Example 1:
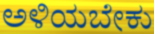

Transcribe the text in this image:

ಅಳಿಯಬೇಕು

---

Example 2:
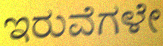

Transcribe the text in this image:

ಇರುವೆಗಳೇ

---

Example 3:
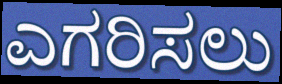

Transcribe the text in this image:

ಎಗರಿಸಲು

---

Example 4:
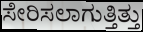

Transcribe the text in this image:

ಸೇರಿಸಲಾಗುತ್ತಿತ್ತು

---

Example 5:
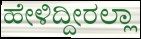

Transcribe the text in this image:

ಹೇಳಿದ್ದೀರಲ್ಲಾ